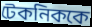
টেকনিককে